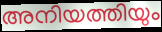
അനിയത്തിയും